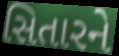
સિતારને